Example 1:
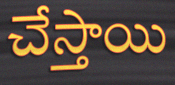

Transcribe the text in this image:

చేస్తాయి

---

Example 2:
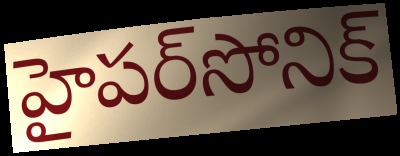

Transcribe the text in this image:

హైపర్‌సోనిక్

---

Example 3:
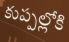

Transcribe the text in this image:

కుప్పల్లోకి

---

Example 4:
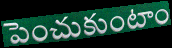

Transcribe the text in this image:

పెంచుకుంటాం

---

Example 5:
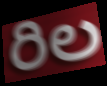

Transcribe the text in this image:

రిల